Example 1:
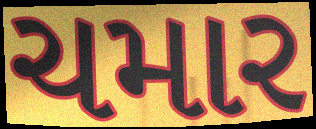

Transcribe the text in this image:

ચમાર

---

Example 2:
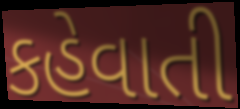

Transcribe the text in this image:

કહેવાતી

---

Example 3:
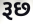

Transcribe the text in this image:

રૂછ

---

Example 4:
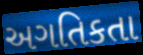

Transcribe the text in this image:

અગતિકતા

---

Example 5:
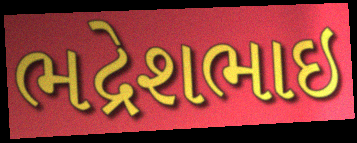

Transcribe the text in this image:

ભદ્રેશભાઇ